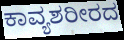
ಕಾವ್ಯಶರೀರದ